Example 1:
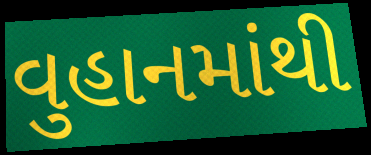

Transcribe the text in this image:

વુહાનમાંથી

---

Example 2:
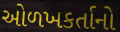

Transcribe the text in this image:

ઓળખકર્તાનો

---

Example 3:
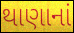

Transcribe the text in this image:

થાણાનાં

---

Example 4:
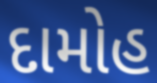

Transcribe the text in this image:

દામોહ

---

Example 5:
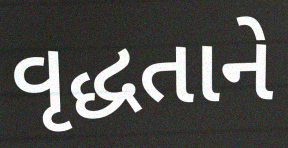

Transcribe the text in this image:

વૃદ્ધતાને